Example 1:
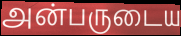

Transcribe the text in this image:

அன்பருடைய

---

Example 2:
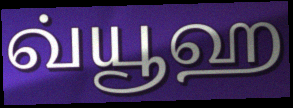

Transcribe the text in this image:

வ்யூஹ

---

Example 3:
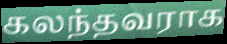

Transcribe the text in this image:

கலந்தவராக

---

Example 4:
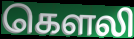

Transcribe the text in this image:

கௌலி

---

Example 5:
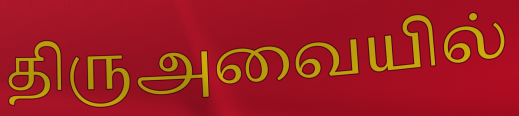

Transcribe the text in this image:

திருஅவையில்